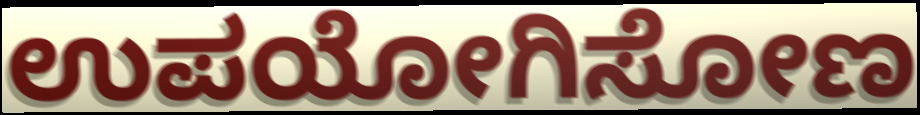
ಉಪಯೋಗಿಸೋಣ